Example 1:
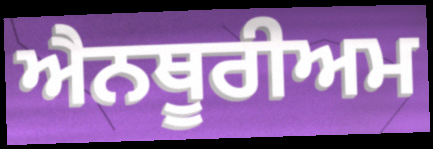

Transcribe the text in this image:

ਐਨਥੂਰੀਅਮ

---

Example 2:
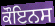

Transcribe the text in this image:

ਕੌਇਨਸ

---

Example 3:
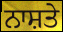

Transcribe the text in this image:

ਨਾਸ਼ਤੇ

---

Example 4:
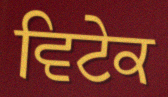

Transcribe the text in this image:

ਵਿਟੇਕ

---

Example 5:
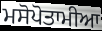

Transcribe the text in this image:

ਮਸੋਪੋਤਾਮੀਆ